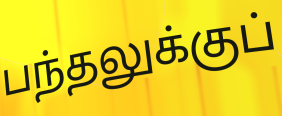
பந்தலுக்குப்